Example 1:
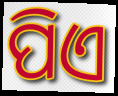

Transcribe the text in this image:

ପିଏ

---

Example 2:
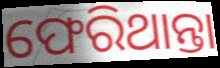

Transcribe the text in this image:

ଫେରିଥାନ୍ତା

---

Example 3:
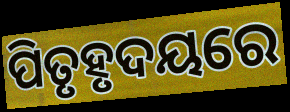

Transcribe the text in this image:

ପିତୃହୃଦୟରେ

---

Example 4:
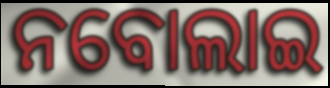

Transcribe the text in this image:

ନବୋଲାଇ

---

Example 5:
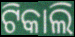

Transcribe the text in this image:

ଟିକାଲି